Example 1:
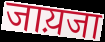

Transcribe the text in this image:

जाय़जा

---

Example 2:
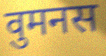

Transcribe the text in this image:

वुमनस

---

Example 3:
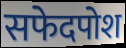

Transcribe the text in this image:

सफेदपोश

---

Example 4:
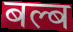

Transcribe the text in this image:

बल्‍ब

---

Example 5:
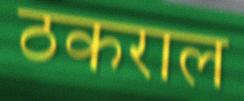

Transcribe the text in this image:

ठकराल